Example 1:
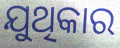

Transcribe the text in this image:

ଯୁଥିକାର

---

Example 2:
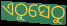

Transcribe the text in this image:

ଏଠୁସେଠୁ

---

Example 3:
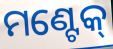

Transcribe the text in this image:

ମଣ୍ଟେକ୍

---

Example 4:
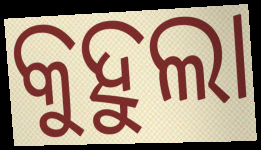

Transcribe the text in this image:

କୁହୁଲା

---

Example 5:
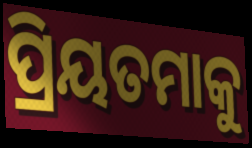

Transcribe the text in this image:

ପ୍ରିୟତମାକୁ